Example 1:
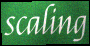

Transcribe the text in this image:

scaling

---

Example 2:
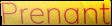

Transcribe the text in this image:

Prenant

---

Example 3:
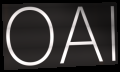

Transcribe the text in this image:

OAI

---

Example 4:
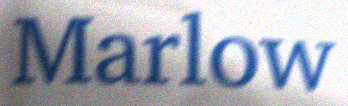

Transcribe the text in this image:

Marlow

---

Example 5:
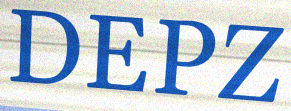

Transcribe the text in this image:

DEPZ